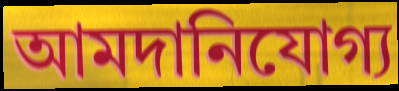
আমদানিযোগ্য